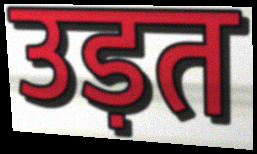
उड़त